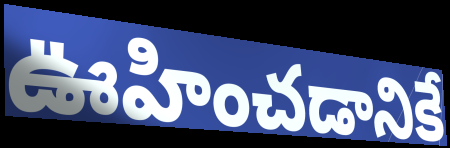
ఊహించడానికే